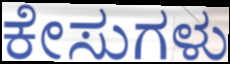
ಕೇಸುಗಳು